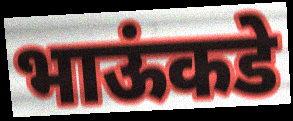
भाऊंकडे